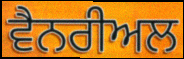
ਵੈਨਰੀਅਲ